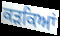
ਕੜਕਿਆਂ